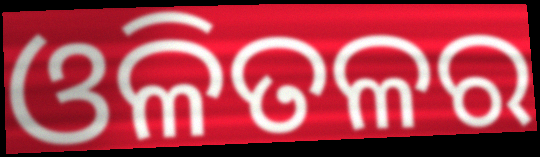
ଓଳିତଳର